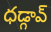
ధడ్గావ్